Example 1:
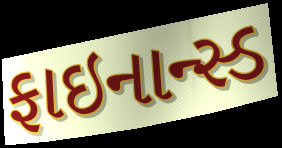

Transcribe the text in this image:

ફાઇનાન્સ્ડ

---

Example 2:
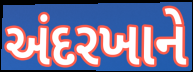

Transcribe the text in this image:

અંદરખાને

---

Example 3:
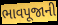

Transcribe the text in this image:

ભાવપૂજાની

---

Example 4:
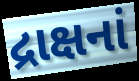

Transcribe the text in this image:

દ્રાક્ષનાં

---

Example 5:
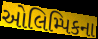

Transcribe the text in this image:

ઓલિમ્પિકના